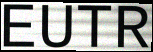
EUTR